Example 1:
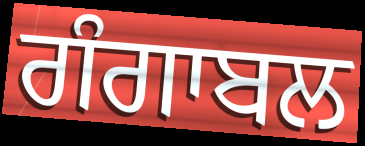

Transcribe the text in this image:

ਗੰਗਾਬਲ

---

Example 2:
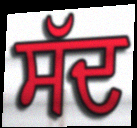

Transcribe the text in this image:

ਸੱਦ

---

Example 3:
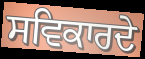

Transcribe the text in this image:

ਸਵਿਕਾਰਦੇ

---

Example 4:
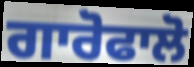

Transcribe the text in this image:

ਗਾਰੋਫਾਲੋ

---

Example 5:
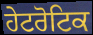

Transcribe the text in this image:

ਹੇਟਰੋਟਿਕ